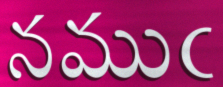
నముఁ